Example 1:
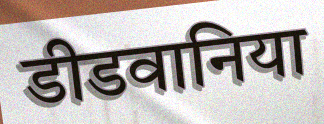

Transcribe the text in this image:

डीडवानिया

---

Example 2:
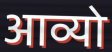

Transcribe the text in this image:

आव्यो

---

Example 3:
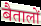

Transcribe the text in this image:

बैतालों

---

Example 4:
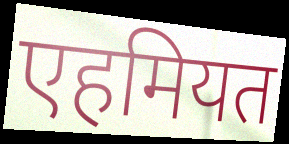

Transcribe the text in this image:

एहमियत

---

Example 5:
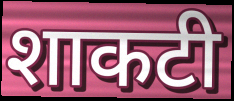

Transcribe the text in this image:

शाकटी